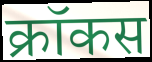
क्रॉकस